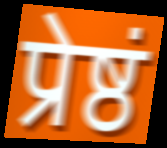
प्रेष्ठं